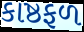
કાષ્ઠફળ